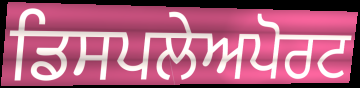
ਡਿਸਪਲੇਅਪੋਰਟ